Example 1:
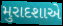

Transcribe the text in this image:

મુરાદશાએ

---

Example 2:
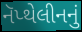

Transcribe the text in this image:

નૅપ્થેલીનનું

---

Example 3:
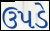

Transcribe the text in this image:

ઉપડે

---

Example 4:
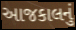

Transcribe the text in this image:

આજકાલનું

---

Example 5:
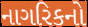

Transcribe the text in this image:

નાગરિકનો